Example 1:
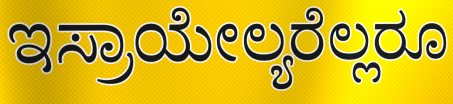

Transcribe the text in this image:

ಇಸ್ರಾಯೇಲ್ಯರೆಲ್ಲರೂ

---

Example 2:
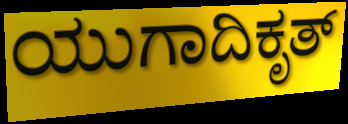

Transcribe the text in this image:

ಯುಗಾದಿಕೃತ್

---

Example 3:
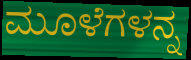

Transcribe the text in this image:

ಮೂಳೆಗಳನ್ನ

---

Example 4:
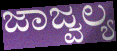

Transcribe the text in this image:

ಜಾಜ್ವಲ್ಯ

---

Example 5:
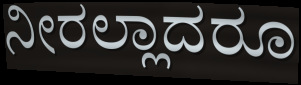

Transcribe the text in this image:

ನೀರಲ್ಲಾದರೂ